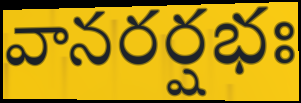
వానరర్షభః